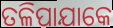
ତଳିପାଯାକେ